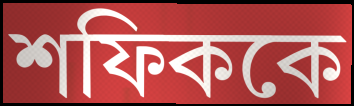
শফিককে